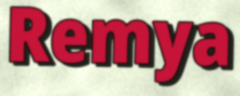
Remya